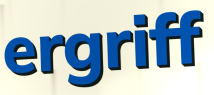
ergriff